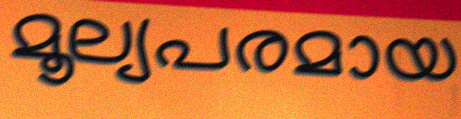
മൂല്യപരമായ